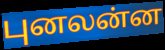
புனலன்ன